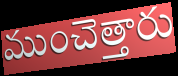
ముంచెత్తారు